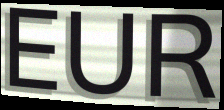
EUR